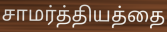
சாமர்த்தியத்தை